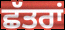
ਛੱਤਰਾਂ